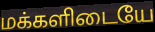
மக்களிடையே